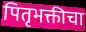
पितृभक्तीचा